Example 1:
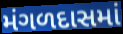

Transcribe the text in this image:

મંગળદાસમાં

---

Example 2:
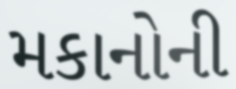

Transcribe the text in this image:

મકાનોની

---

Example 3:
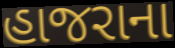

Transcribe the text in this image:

હાજરાના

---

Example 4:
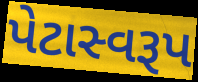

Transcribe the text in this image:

પેટાસ્વરૂપ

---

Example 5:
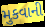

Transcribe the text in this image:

મુકવાની